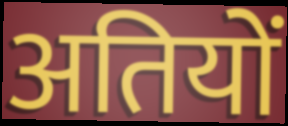
अतियों